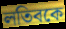
লতিবকে